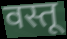
वस्तू